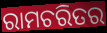
ରାମଚରିତର